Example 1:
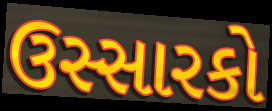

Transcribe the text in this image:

ઉસ્સારકો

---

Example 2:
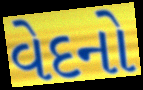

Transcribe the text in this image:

વેદનો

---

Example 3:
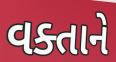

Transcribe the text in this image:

વક્તાને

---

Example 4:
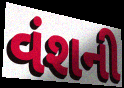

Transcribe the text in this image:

વંશની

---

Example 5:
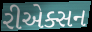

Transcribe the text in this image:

રીએક્સન